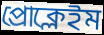
প্রোক্লেইম